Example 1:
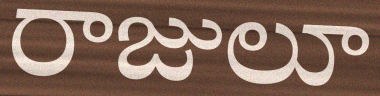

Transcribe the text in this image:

రాజులూ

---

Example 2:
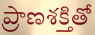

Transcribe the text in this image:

ప్రాణశక్తితో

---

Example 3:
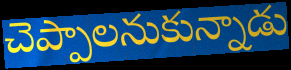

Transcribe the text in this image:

చెప్పాలనుకున్నాడు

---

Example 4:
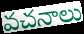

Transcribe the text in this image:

వచనాలు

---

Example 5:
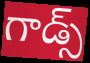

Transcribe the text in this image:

గాడ్స్